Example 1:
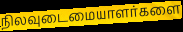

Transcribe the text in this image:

நிலவுடைமையாளர்களை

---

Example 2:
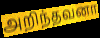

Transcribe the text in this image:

அறிந்தவனா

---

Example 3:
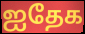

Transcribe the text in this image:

ஐதேக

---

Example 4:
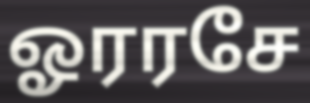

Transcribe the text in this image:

ஓரரசே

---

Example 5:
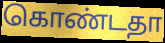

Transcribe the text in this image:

கொண்டதா